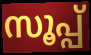
സൂപ്പ്